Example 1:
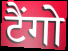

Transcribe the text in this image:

टैंगो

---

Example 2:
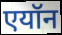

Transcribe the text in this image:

एयॉन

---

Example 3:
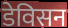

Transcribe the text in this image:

डेविसन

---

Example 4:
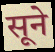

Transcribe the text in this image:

सूने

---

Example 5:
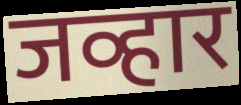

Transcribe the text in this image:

जव्हार